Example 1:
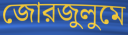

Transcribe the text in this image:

জোরজুলুমে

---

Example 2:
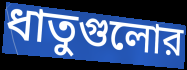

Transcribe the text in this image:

ধাতুগুলোর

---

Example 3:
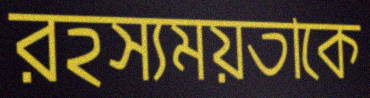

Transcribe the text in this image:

রহস্যময়তাকে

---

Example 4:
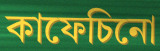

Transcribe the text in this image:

কাফেচিনো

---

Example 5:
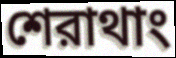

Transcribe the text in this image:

শেরাথাং